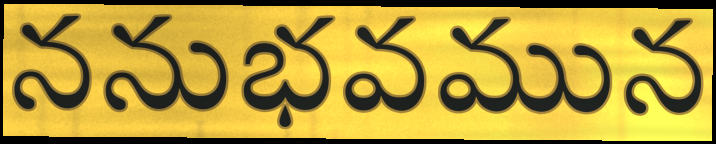
ననుభవమున